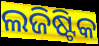
ଲଜିଷ୍ଟିକ